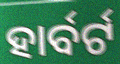
ହାର୍ବର୍ଟ